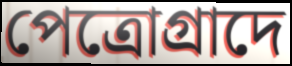
পেত্রোগ্রাদে